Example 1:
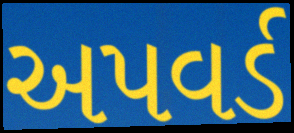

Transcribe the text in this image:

અપવર્ડ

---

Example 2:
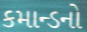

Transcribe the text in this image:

કમાન્ડનો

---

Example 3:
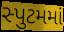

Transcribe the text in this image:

સ્પુટમમાં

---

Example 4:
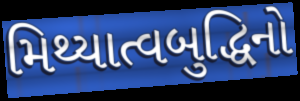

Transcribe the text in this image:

મિથ્યાત્વબુદ્ધિનો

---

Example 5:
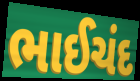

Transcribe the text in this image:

ભાઈચંદ